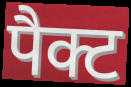
पैक्ट